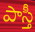
పాస్తీ